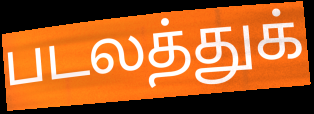
படலத்துக்